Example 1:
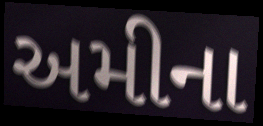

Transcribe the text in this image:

અમીના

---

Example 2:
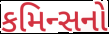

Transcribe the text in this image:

કમિન્સનો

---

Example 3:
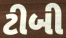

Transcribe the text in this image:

ટીબી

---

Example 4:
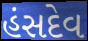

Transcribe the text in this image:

હંસદેવ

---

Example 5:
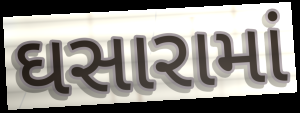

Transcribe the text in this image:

ઘસારામાં